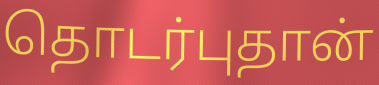
தொடர்புதான்